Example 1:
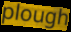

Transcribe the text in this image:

plough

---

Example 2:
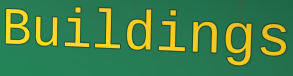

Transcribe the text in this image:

Buildings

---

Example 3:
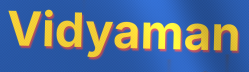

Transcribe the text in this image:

Vidyaman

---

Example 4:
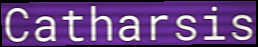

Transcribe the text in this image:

Catharsis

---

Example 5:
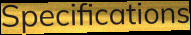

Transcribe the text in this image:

Specifications